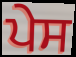
ਪੇਸ